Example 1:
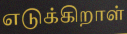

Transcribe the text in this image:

எடுக்கிறாள்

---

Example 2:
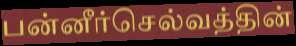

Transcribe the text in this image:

பன்னீர்செல்வத்தின்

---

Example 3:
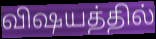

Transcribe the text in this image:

விஷயத்தில்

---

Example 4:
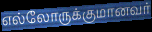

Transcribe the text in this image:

எல்லோருக்குமானவர்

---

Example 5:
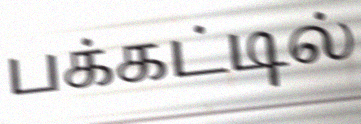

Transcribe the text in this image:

பக்கட்டில்